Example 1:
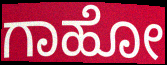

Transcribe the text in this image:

ಗಾಹೋ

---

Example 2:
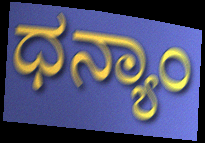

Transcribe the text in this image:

ಧನ್ಯಾಂ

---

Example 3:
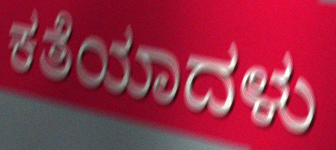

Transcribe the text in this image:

ಕತೆಯಾದಳು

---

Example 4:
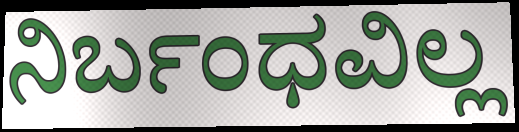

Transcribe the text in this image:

ನಿರ್ಬಂಧವಿಲ್ಲ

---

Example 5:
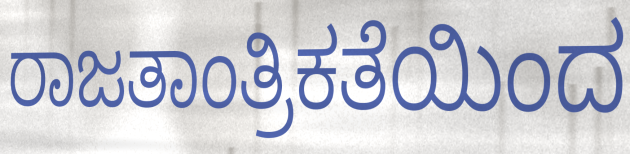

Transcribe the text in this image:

ರಾಜತಾಂತ್ರಿಕತೆಯಿಂದ